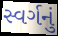
સ્વર્ગનું